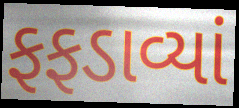
ફફડાવ્યાં